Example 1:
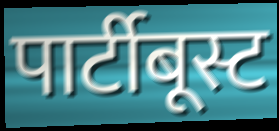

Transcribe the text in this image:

पार्टीबूस्ट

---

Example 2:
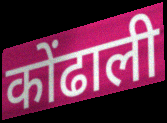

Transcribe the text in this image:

कोंढाली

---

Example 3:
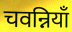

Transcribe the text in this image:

चवन्नियाँ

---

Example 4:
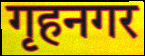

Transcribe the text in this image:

गृहनगर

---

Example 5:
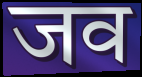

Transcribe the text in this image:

जव